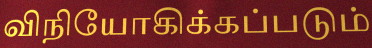
விநியோகிக்கப்படும்